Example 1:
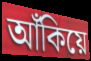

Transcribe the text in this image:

আঁকিয়ে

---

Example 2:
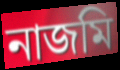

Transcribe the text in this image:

নাজমি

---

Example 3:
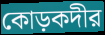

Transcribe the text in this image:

কোড়কদীর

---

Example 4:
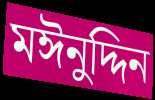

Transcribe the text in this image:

মঈনুদ্দিন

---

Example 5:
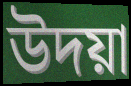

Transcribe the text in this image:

উদয়া